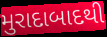
મુરાદાબાદથી